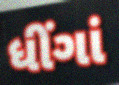
ધીંગાં